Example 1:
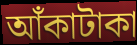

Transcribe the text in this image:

আঁকাটাকা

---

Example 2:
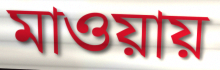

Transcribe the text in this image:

মাওয়ায়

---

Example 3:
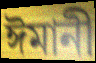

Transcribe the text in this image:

ঈমানী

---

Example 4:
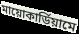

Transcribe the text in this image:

মায়োকার্ডিয়ামে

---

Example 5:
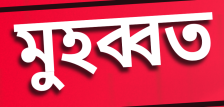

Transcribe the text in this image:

মুহব্বত